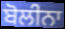
ਬੋਲੀਨਾ